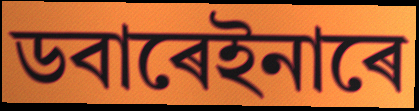
ডবাৰেইনাৰে